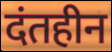
दंतहीन